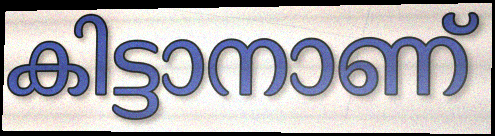
കിട്ടാനാണ്